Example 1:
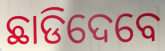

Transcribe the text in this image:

ଛାଡିଦେବେ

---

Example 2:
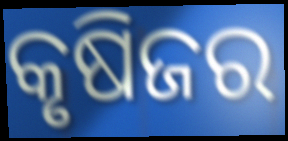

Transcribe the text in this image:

କୃଷିଜର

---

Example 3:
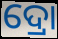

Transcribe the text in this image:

ଦ୍ରୋ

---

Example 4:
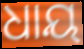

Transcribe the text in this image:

ଧାୟ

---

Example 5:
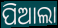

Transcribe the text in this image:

ପିଆଲା